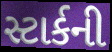
સ્ટાર્કની